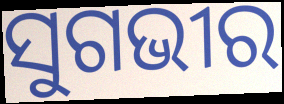
ସୁଗଭୀର